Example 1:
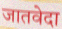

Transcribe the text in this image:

जातवेदा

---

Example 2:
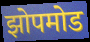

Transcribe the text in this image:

झोपमोड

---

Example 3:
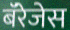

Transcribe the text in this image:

बॅरेजेस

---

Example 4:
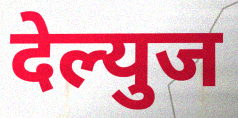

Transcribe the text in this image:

देल्युज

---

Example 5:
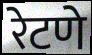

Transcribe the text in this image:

रेटणे